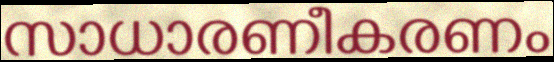
സാധാരണീകരണം